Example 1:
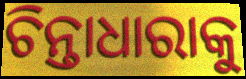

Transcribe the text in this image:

ଚିନ୍ତାଧାରାକୁ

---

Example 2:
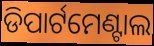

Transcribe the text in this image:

ଡିପାର୍ଟମେଣ୍ଟାଲ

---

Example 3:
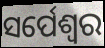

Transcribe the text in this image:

ସର୍ପେଶ୍ଵର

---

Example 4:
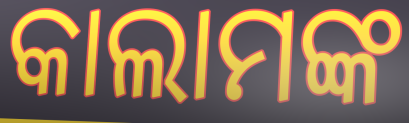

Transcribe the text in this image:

କାଲାମଙ୍କ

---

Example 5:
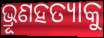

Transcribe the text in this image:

ଭ୍ରୂଣହତ୍ୟାକୁ